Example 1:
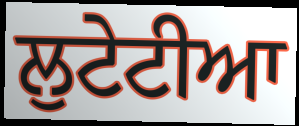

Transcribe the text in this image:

ਲੁਟੇਟੀਆ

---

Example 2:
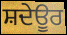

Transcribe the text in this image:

ਸ਼ਦੇਊਰ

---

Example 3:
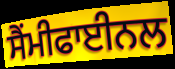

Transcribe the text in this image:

ਸੈਂਮੀਫਾਈਨਲ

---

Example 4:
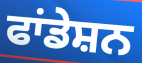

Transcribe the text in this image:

ਫਾਂਡੇਸ਼ਨ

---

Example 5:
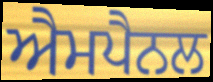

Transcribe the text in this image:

ਐਮਪੈਨਲ